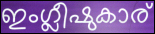
ഇംഗ്ലീഷുകാര്